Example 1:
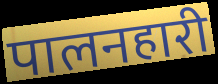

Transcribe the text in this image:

पालनहारी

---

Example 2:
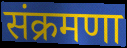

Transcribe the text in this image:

संक्रमणा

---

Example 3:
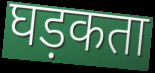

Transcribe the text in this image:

घड़कता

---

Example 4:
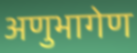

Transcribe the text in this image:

अणुभागेण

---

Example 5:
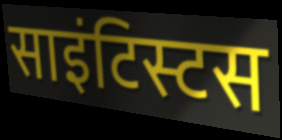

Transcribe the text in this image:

साइंटिस्टस